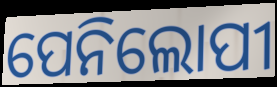
ପେନିଲୋପୀ